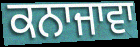
ਕਨਾਜਾਵਾ